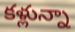
కళ్లున్నా